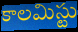
కాలమిస్టు